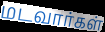
மடவார்கள்